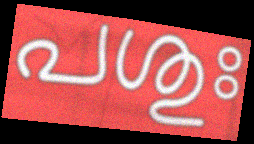
പശുഃ